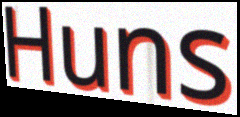
Huns